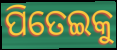
ପିତେଇକୁ